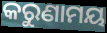
କରୁଣାମୟ